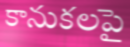
కానుకలపై